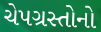
ચેપગ્રસ્તોનો